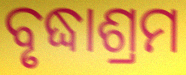
ବୃଦ୍ଧାଶ୍ରମ